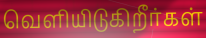
வெளியிடுகிறீர்கள்